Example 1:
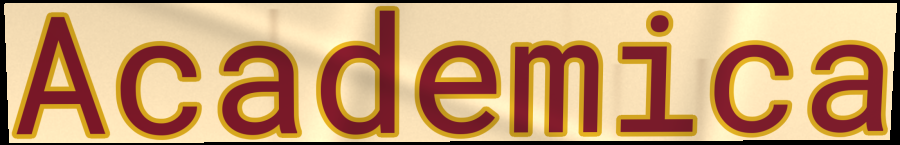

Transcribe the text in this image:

Academica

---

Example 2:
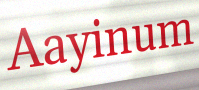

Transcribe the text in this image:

Aayinum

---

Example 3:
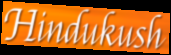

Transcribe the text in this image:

Hindukush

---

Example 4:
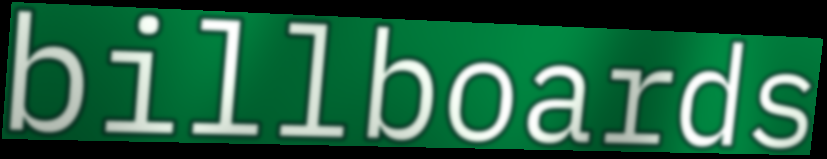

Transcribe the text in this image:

billboards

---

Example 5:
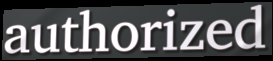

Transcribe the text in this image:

authorized